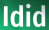
Idid